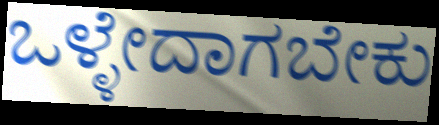
ಒಳ್ಳೇದಾಗಬೇಕು